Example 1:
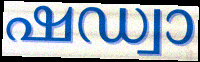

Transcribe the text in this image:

ഷഡ്വാ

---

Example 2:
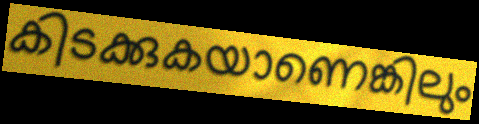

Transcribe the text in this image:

കിടക്കുകയാണെങ്കിലും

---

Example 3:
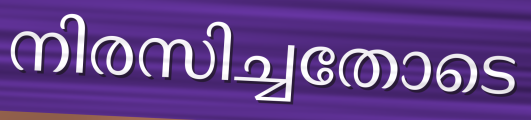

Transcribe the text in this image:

നിരസിച്ചതോടെ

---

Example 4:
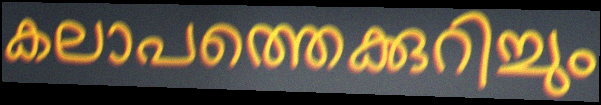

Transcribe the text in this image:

കലാപത്തെക്കുറിച്ചും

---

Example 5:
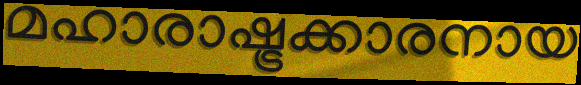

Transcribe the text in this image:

മഹാരാഷ്ട്രക്കാരനായ